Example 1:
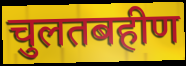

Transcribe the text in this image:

चुलतबहीण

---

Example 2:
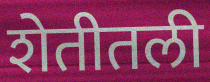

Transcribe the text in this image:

शेतीतली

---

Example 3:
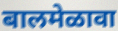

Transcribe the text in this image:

बालमेळावा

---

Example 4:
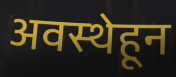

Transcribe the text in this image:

अवस्थेहून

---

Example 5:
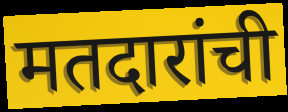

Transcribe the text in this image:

मतदारांची